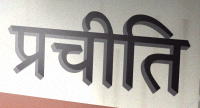
प्रचीति